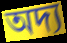
অদ্য